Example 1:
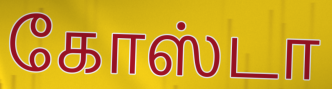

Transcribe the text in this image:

கோஸ்டா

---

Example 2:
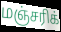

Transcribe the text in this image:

மஞ்சரிக்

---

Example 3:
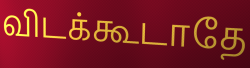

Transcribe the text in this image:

விடக்கூடாதே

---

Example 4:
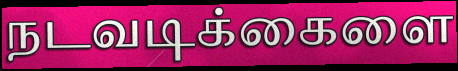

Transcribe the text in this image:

நடவடிக்கைளை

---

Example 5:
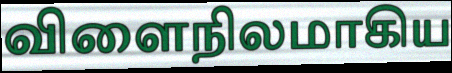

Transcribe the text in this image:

விளைநிலமாகிய